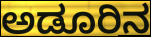
ಅಡೂರಿನ